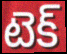
టెక్